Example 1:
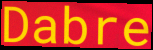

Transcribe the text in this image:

Dabre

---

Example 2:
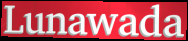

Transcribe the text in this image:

Lunawada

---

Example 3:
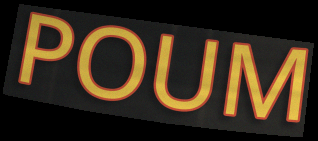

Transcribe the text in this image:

POUM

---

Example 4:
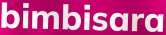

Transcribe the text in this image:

bimbisara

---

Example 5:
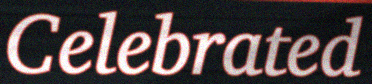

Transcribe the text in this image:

Celebrated